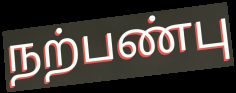
நற்பண்பு